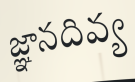
జ్ఞానదివ్య